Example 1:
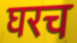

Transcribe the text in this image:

घरच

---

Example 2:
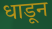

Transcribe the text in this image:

धाडून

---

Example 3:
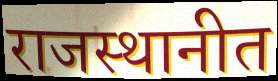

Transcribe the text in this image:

राजस्थानीत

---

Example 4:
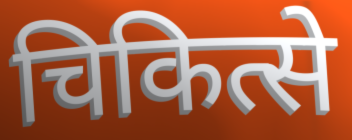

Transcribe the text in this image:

चिकित्से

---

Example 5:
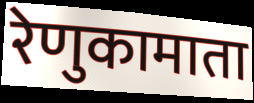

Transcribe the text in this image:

रेणुकामाता